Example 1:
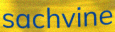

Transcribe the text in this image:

sachvine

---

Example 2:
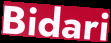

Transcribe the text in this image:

Bidari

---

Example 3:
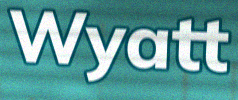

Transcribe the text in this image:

Wyatt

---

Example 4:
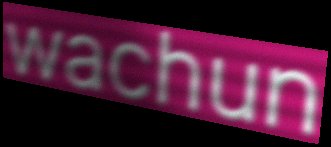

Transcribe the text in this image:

wachun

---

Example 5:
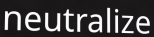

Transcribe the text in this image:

neutralize